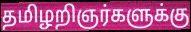
தமிழறிஞர்களுக்கு